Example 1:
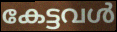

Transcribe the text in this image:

കേട്ടവൾ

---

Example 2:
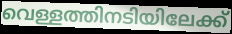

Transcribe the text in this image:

വെള്ളത്തിനടിയിലേക്ക്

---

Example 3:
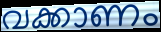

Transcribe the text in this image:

വക്കാണം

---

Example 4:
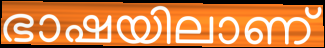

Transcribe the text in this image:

ഭാഷയിലാണ്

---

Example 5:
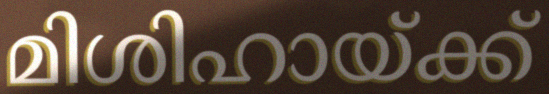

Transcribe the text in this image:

മിശിഹായ്ക്ക്